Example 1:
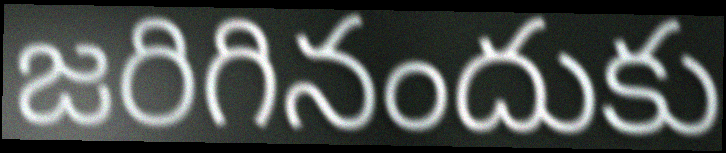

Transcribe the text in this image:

జరిగినందుకు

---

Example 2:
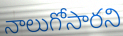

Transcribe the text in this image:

నాలుగోసారని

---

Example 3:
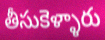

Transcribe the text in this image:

తీసుకెళ్ళారు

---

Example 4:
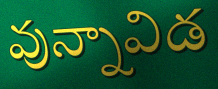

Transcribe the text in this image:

వున్నావిడ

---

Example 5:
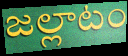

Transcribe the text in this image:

జల్లాటం